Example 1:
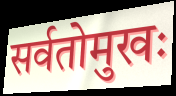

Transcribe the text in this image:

सर्वतोमुखः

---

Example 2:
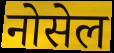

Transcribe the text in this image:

नोसेल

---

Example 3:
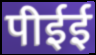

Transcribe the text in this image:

पीईई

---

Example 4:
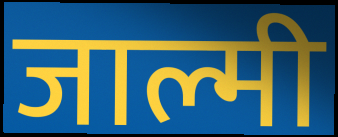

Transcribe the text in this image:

जाल्मी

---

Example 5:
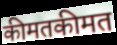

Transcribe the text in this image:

कीमतकीमत